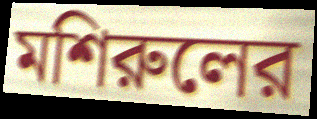
মশিরুলের